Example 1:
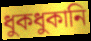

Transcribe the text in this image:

ধুকধুকানি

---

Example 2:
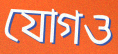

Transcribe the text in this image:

যোগও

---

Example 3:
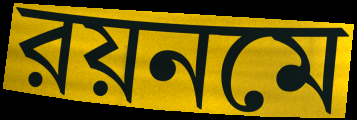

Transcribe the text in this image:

রয়নমে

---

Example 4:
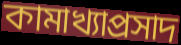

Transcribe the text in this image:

কামাখ্যাপ্রসাদ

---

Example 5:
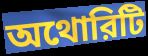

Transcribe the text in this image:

অথোরিটি